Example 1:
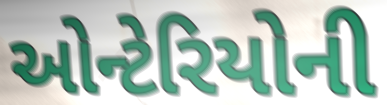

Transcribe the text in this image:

ઓન્ટેરિયોની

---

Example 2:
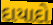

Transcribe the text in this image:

દાયાદો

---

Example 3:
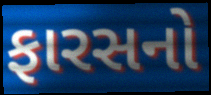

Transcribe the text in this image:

ફારસનો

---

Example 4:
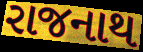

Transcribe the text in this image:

રાજનાથ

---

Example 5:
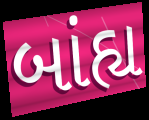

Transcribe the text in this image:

બાંહ્ય